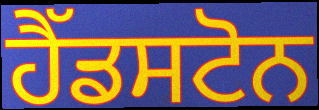
ਹੈੱਡਸਟੋਨ